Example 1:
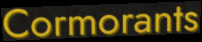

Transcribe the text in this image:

Cormorants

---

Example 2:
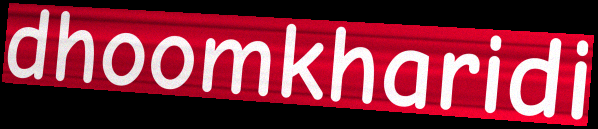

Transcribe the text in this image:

dhoomkharidi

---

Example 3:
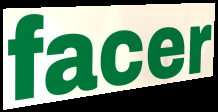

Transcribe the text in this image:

facer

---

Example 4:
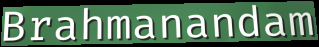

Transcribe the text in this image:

Brahmanandam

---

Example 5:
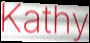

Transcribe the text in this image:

Kathy